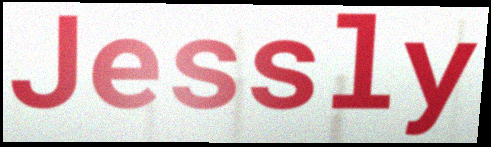
Jessly